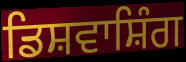
ਡਿਸ਼ਵਾਸ਼ਿੰਗ